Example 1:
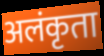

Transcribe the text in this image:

अलंकृता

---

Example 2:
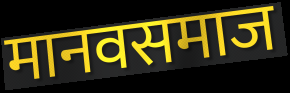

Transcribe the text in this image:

मानवसमाज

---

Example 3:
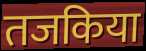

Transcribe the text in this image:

तजकिया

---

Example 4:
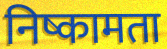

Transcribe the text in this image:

निष्कामता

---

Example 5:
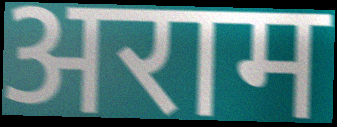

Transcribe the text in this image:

अराम